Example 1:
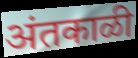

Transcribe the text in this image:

अंतकाळी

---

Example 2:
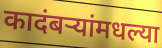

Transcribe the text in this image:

कादंबऱ्यांमधल्या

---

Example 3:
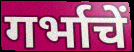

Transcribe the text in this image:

गर्भाचें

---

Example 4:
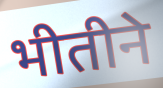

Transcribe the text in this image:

भीतीने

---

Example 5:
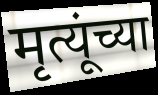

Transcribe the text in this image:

मृत्यूंच्या